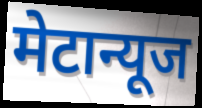
मेटान्यूज